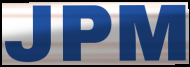
JPM